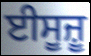
ਈਸੂਜ਼ੂ